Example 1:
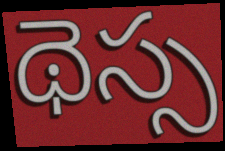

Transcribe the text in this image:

థెస్స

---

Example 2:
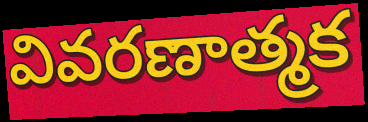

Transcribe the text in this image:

వివరణాత్మక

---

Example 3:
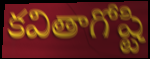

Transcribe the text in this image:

కవితాగోష్టి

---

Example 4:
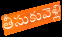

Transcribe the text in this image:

తీసుకువెళ్లి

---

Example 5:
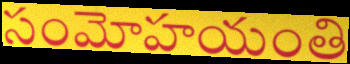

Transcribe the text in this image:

సంమోహయంతి